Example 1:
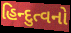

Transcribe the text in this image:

હિન્દુત્વનો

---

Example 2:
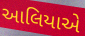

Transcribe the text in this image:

આલિયાએ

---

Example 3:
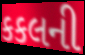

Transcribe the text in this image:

કકલની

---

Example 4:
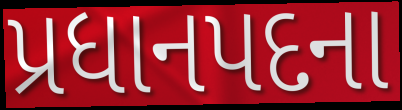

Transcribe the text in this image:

પ્રધાનપદના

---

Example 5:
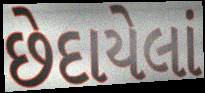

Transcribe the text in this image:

છેદાયેલાં